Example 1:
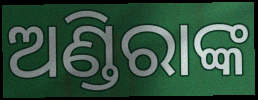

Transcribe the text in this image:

ଅଣ୍ଡିରାଙ୍କ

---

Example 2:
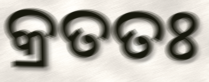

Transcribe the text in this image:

କ୍ରତତଃ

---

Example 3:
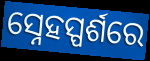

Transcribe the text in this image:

ସ୍ନେହସ୍ପର୍ଶରେ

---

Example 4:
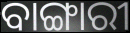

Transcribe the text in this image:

ବାଙ୍ଗାରୀ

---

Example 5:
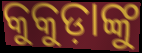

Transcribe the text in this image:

କୁକୁଡ଼ାଙ୍କୁ